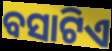
ବସାଟିଏ